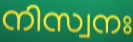
നിസ്വനഃ